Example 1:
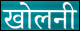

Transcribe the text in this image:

खोलनी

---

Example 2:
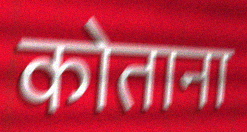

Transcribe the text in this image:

कोताना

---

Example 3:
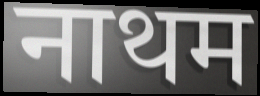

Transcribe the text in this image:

नाथम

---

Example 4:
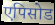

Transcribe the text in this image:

एपिसोड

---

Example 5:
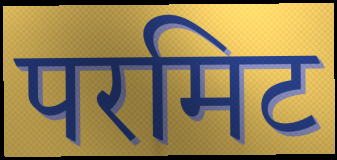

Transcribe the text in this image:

परमिट